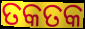
ତକତକ